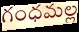
గంధమల్ల